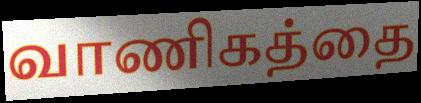
வாணிகத்தை